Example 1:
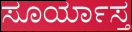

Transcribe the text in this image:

ಸೂರ್ಯಾಸ್ತ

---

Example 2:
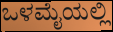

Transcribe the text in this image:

ಒಳಮೈಯಲ್ಲಿ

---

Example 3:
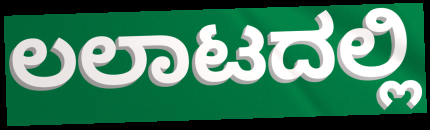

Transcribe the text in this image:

ಲಲಾಟದಲ್ಲಿ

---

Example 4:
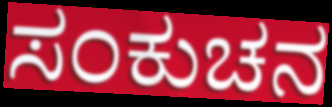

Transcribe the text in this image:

ಸಂಕುಚನ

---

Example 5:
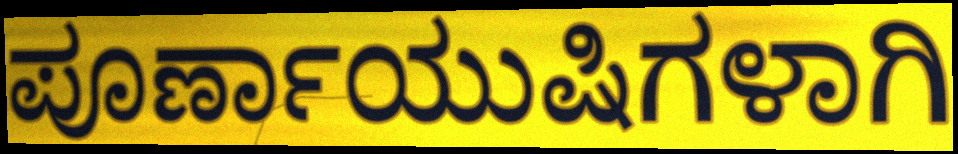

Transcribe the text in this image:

ಪೂರ್ಣಾಯುಷಿಗಳಾಗಿ